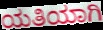
ಯತಿಯಾಗಿ